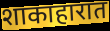
शाकाहारात